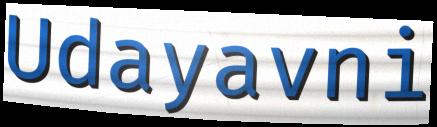
Udayavni